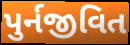
પુર્નજીવિત